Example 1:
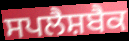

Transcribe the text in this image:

ਸਪਲੈਸ਼ਬੈਕ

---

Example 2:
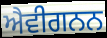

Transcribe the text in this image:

ਐਵੀਗਨਨ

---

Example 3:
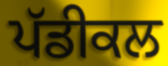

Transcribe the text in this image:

ਪੱਡੀਕਲ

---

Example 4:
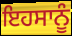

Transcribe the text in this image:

ਇਹਸਾਨੂੰ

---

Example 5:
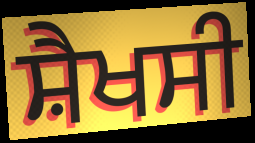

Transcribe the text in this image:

ਸ਼ੈਖਸੀ